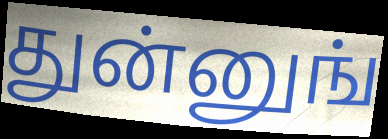
துன்னுங்